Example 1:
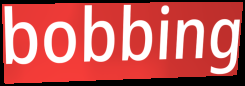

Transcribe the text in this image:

bobbing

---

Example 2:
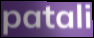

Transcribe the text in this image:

patali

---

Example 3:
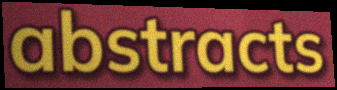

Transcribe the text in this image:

abstracts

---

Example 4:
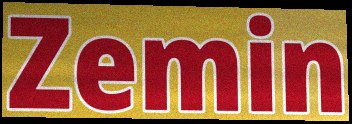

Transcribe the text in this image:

Zemin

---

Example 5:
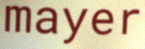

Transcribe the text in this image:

mayer